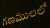
గణములలో